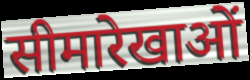
सीमारेखाओं